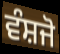
ਵੰਸ਼ਜੋ